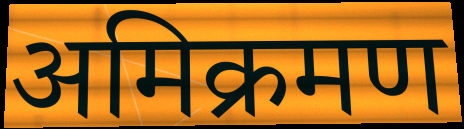
अमिक्रमण